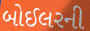
બોઈલરની